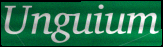
Unguium